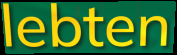
lebten